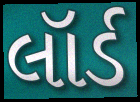
લૉર્ડ